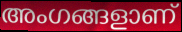
അംഗങ്ങളാണ്